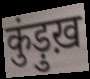
कुंड़ुख़